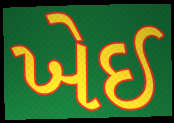
ખેઈ